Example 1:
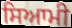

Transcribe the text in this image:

ਸਿਆਮੀ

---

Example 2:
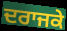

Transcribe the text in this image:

ਦਰਾਜਕੇ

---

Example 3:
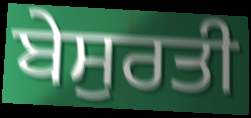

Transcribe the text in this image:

ਬੇਸੁਰਤੀ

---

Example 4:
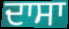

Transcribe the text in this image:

ਦਾਸਾ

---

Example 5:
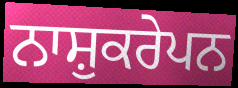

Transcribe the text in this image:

ਨਾਸ਼ੁਕਰੇਪਨ